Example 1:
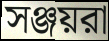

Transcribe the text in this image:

সঞ্জয়রা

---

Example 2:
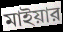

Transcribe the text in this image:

মাইয়ার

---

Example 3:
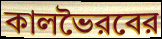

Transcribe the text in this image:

কালভৈরবের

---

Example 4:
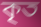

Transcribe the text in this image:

কৃত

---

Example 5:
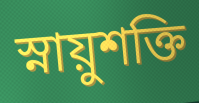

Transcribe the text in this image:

স্নায়ুশক্তি